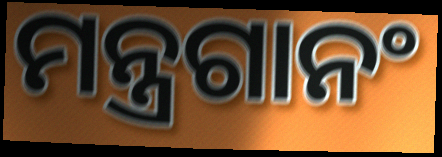
ମନ୍ତ୍ରଗାନଂ